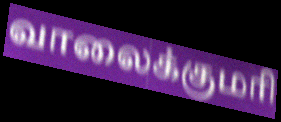
வாலைக்குமரி